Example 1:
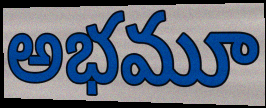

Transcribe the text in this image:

అభమూ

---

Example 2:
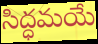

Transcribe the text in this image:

సిద్ధమయే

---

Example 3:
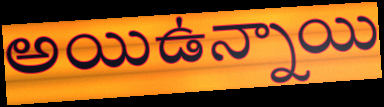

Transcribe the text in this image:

అయిఉన్నాయి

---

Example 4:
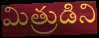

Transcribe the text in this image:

మిత్రుడిని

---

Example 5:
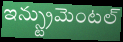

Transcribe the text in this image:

ఇన్స్ట్రుమెంటల్